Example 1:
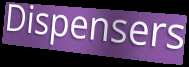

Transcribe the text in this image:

Dispensers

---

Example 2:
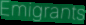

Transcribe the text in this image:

Emigrants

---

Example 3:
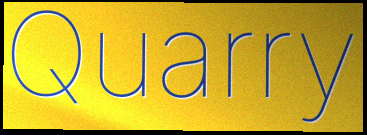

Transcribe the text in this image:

Quarry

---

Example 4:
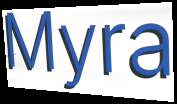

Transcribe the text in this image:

Myra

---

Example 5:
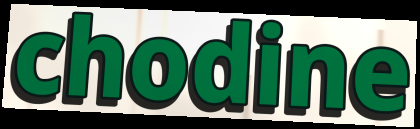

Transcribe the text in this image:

chodine